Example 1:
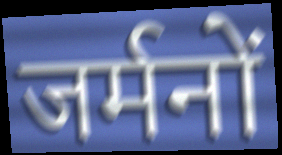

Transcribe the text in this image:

जर्मनों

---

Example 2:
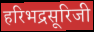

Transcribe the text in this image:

हरिभद्रसूरिजी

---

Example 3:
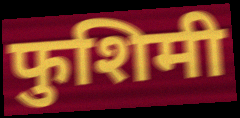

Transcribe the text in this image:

फुशिमी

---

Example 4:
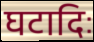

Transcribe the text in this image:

घटादिः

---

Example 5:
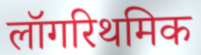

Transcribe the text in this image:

लॉगरिथमिक